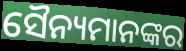
ସୈନ୍ୟମାନଙ୍କର